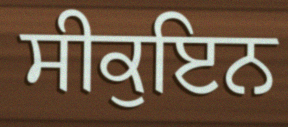
ਸੀਕੁਇਨ